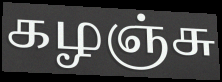
கழஞ்சு